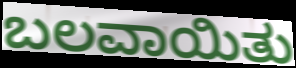
ಬಲವಾಯಿತು